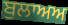
ਬੁਲਾਅਅ